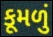
કૂમળું